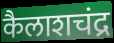
कैलाशचंद्र